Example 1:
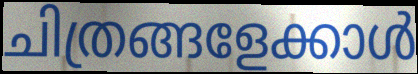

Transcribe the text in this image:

ചിത്രങ്ങളേക്കാൾ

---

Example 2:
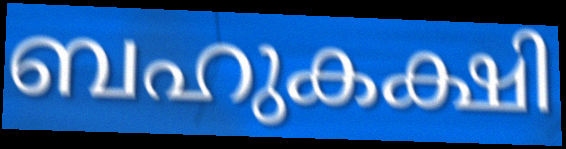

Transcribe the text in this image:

ബഹുകക്ഷി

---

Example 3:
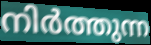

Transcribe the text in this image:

നിർത്തുന്ന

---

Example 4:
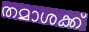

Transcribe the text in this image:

തമാശക്ക്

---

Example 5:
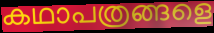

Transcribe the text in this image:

കഥാപത്രങ്ങളെ